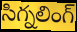
సిగ్నలింగ్